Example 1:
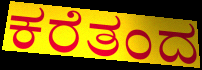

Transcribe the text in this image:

ಕರೆತಂದ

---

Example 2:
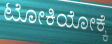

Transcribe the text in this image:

ಟೋಕಿಯೋಕ್ಕೆ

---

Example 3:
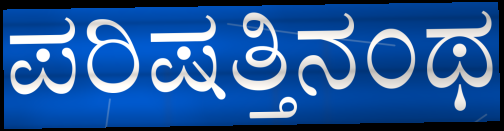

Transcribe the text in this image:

ಪರಿಷತ್ತಿನಂಥ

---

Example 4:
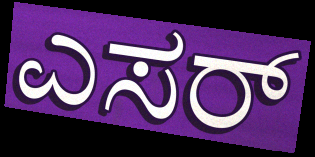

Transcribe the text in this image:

ಎಸರ್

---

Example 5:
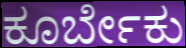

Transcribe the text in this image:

ಕೂರ್ಬೇಕು